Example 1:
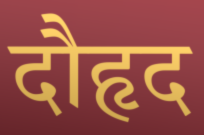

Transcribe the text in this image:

दौहृद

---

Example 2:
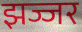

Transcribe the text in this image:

झज्जर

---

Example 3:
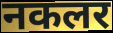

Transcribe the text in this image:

नकलर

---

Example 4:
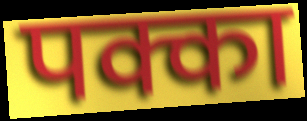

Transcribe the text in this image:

पक्का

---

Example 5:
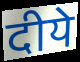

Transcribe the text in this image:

दीये